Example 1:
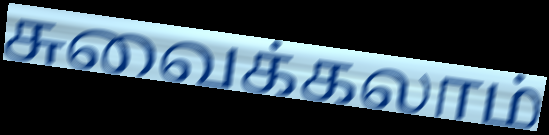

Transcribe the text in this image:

சுவைக்கலாம்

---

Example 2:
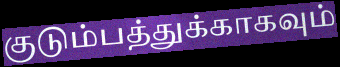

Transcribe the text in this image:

குடும்பத்துக்காகவும்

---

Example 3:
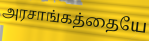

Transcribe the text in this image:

அரசாங்கத்தையே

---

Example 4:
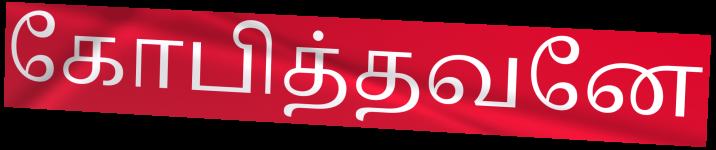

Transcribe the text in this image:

கோபித்தவனே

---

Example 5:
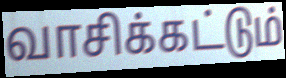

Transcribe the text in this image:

வாசிக்கட்டும்